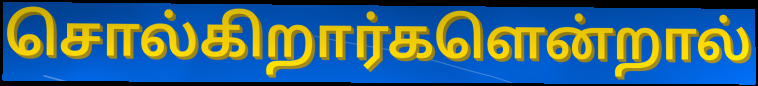
சொல்கிறார்களென்றால்